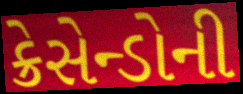
ક્રેસેન્ડોની